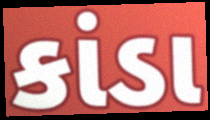
કાંડા